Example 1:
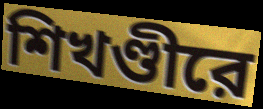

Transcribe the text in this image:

শিখণ্ডীরে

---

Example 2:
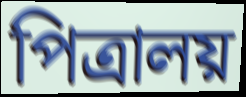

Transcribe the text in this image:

পিত্রালয়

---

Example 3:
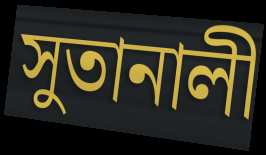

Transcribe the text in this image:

সুতানালী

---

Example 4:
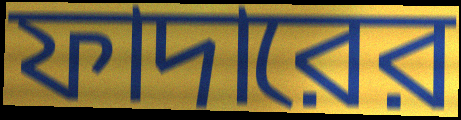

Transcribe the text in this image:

ফাদারের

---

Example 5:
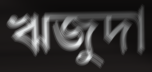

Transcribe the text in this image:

ঋজুদা